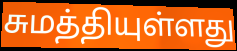
சுமத்தியுள்ளது